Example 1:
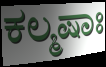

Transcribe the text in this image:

ಕಲ್ಮಷಾಃ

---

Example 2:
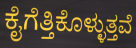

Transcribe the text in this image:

ಕೈಗೆತ್ತಿಕೊಳ್ಳುತ್ತವೆ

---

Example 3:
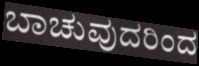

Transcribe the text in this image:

ಬಾಚುವುದರಿಂದ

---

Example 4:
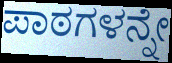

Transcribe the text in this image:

ಪಾಠಗಳನ್ನೇ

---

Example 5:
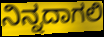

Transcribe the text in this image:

ನಿನ್ನದಾಗಲಿ